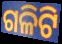
ଗଳିଟି